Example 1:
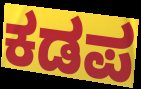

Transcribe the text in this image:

ಕಡಪ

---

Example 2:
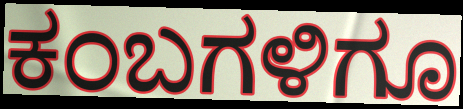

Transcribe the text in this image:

ಕಂಬಗಳಿಗೂ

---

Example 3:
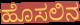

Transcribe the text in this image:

ಹೊಸಲಿನ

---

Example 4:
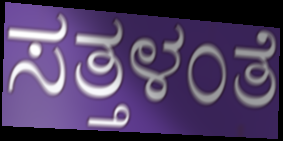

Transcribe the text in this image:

ಸತ್ತಳಂತೆ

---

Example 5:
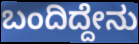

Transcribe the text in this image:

ಬಂದಿದ್ದೇನು